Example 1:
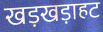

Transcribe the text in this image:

खड़खड़ाहट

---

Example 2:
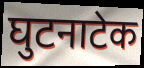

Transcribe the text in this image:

घुटनाटेक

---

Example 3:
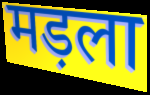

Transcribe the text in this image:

मड़ला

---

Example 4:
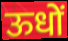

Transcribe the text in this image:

ऊधों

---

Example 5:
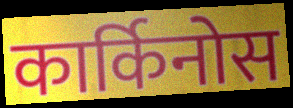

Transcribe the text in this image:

कार्किनोस